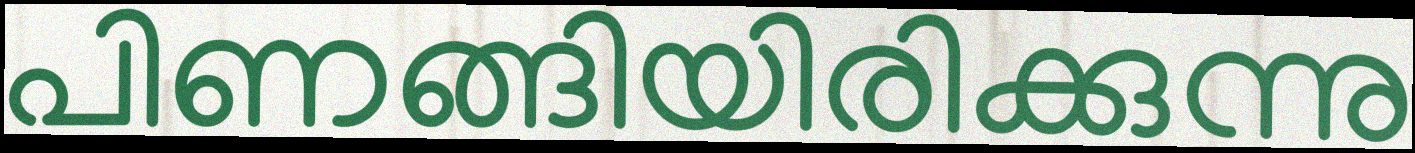
പിണങ്ങിയിരിക്കുന്നു